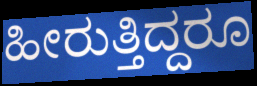
ಹೀರುತ್ತಿದ್ದರೂ